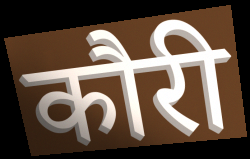
कौरी